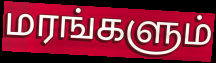
மரங்களும்